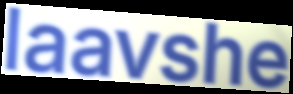
laavshe